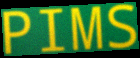
PIMS